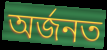
অৰ্জনত